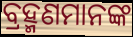
ବ୍ରହ୍ମଣମାନଙ୍କ